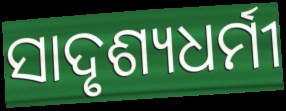
ସାଦୃଶ୍ୟଧର୍ମୀ